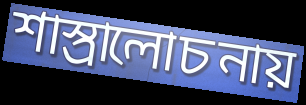
শাস্ত্রালোচনায়